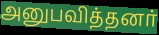
அனுபவித்தனர்